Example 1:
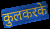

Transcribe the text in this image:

कुलकरके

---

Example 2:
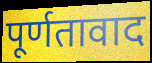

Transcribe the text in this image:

पूर्णतावाद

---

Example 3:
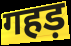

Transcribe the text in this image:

गहड़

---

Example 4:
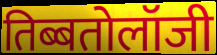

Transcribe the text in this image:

तिब्बतोलॉजी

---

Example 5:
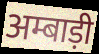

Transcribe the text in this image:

अम्बाड़ी